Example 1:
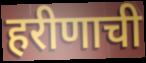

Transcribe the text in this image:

हरीणाची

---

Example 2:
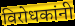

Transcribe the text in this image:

विरोधकांनी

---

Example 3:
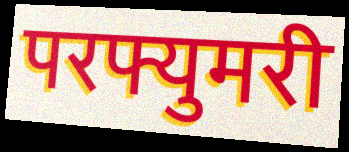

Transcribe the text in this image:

परफ्युमरी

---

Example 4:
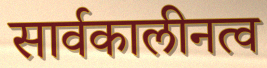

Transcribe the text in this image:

सार्वकालीनत्व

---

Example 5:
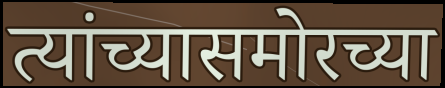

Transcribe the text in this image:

त्यांच्यासमोरच्या